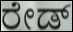
ರೇಡ್